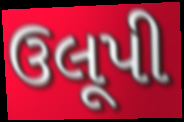
ઉલૂપી